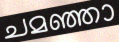
ചമഞ്ഞാ